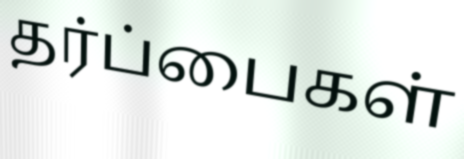
தர்ப்பைகள்